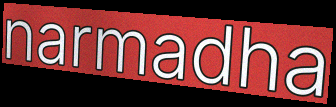
narmadha